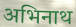
अभिनाथ